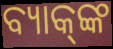
ବ୍ୟାକ୍‍ଙ୍କ